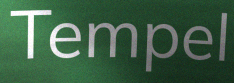
Tempel